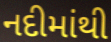
નદીમાંથી